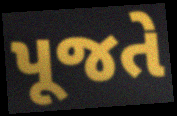
પૂજતે